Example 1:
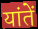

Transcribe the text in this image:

यांतें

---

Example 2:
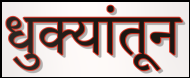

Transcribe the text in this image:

धुक्यांतून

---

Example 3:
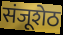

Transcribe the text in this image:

संजूशेठ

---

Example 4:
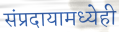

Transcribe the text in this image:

संप्रदायामध्येही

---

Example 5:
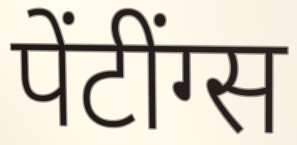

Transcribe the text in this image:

पेंटींग्स